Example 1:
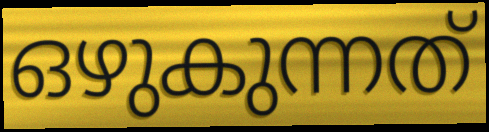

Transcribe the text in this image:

ഒഴുകുന്നത്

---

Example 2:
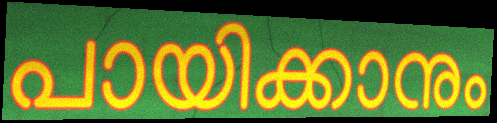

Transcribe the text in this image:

പായിക്കാനും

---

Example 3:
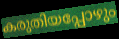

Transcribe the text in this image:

കരുതിയപ്പോഴും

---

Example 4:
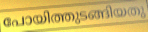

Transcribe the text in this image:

പോയിത്തുടങ്ങിയതു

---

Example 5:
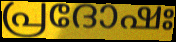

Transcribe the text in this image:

പ്രദോഷഃ